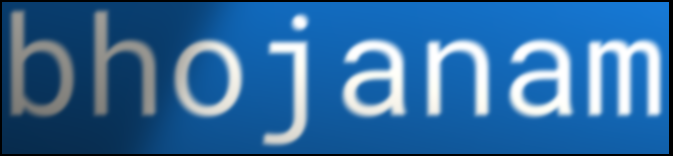
bhojanam